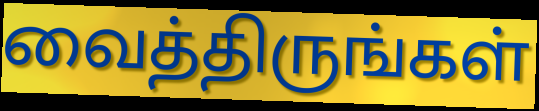
வைத்திருங்கள்